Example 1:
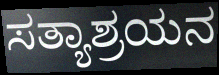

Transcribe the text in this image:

ಸತ್ಯಾಶ್ರಯನ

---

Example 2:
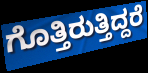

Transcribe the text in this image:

ಗೊತ್ತಿರುತ್ತಿದ್ದರೆ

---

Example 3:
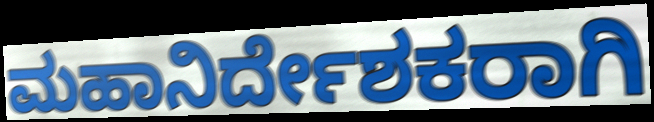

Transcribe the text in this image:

ಮಹಾನಿರ್ದೇಶಕರಾಗಿ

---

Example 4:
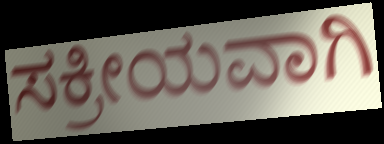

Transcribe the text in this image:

ಸಕ್ರೀಯವಾಗಿ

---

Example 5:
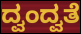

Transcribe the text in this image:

ದ್ವಂದ್ವತೆ